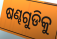
ଷଣ୍ଢଗୁଡିକୁ